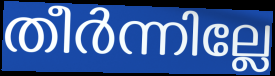
തീർന്നില്ലേ